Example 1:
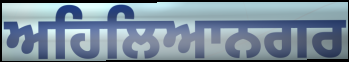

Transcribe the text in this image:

ਅਹਿਲਿਆਨਗਰ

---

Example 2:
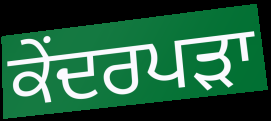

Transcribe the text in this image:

ਕੇਂਦਰਪੜਾ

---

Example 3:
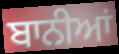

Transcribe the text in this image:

ਬਾਨੀਆਂ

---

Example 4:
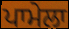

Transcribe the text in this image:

ਪਾਮੇਲਾ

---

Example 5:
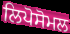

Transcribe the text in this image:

ਲਿਪੋਸੋਮਲ